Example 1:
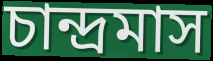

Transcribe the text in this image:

চান্দ্রমাস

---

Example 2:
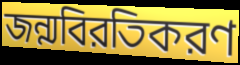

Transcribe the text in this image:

জন্মবিরতিকরণ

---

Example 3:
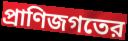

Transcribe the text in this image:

প্রাণিজগতের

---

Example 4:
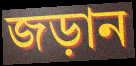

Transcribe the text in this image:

জড়ান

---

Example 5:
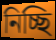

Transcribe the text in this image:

নিচ্ছি